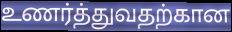
உணர்த்துவதற்கான